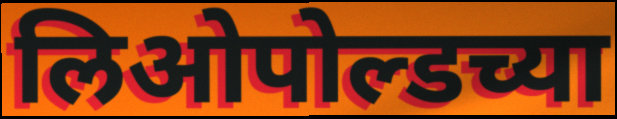
लिओपोल्डच्या